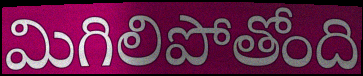
మిగిలిపోతోంది